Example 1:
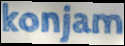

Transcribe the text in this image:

konjam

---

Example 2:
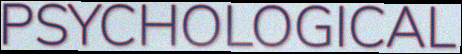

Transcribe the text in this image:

PSYCHOLOGICAL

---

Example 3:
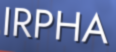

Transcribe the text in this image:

IRPHA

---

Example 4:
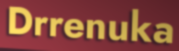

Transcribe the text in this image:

Drrenuka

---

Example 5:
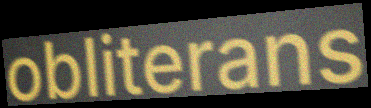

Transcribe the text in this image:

obliterans